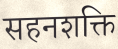
सहनशक्ति